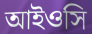
আইওসি